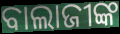
ବାଲାଜୀଙ୍କ